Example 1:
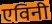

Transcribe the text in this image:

एविनी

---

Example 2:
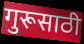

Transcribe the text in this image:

गुरूसाठी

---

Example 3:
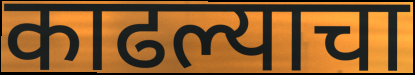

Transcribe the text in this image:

काढल्याचा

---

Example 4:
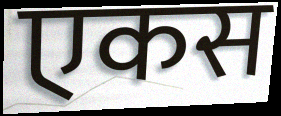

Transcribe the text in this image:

एकस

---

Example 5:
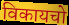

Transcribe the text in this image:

विकायचो